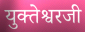
युक्तेश्वरजी